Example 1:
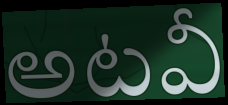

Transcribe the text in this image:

అటవీ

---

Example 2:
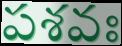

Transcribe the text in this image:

పశవః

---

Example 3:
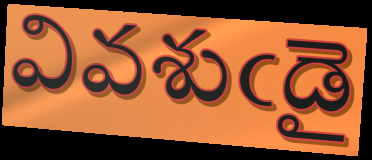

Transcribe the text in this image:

వివశుఁడై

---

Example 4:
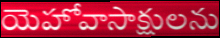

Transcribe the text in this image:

యెహోవాసాక్షులను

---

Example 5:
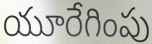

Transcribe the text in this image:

యూరేగింపు